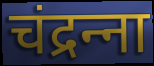
चंद्रन्ना